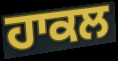
ਹਾਕਲ